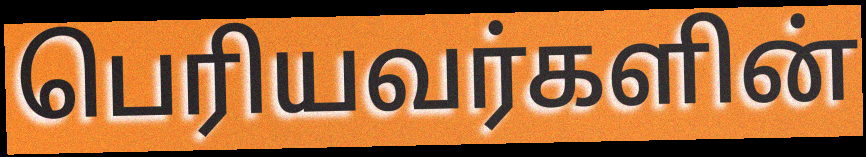
பெரியவர்களின்